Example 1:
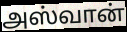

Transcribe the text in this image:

அஸ்வான்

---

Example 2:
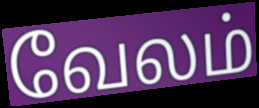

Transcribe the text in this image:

வேலம்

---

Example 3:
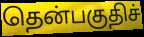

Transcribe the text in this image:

தென்பகுதிச்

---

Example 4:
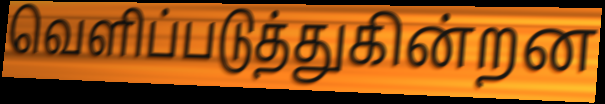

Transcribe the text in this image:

வெளிப்படுத்துகின்றன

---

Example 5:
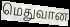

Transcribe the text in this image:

மெதுவான